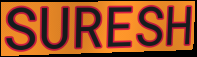
SURESH